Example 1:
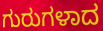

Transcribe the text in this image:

ಗುರುಗಳಾದ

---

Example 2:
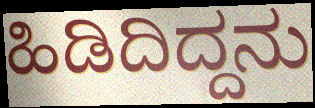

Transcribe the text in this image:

ಹಿಡಿದಿದ್ದನು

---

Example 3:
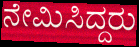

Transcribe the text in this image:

ನೇಮಿಸಿದ್ದರು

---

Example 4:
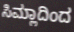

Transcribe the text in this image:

ಸಿಮ್ಲಾದಿಂದ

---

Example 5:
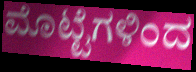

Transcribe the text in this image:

ಮೊಟ್ಟೆಗಳಿಂದ